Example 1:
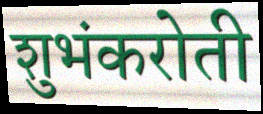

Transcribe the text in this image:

शुभंकरोती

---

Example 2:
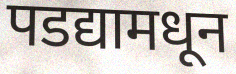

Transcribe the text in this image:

पडद्यामधून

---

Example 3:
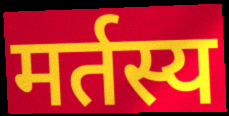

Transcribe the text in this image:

मर्तस्य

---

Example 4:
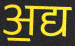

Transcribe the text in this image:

अ॒द्य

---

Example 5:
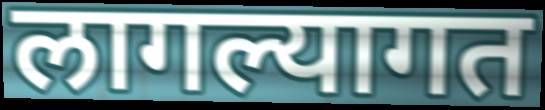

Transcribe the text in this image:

लागल्यागत